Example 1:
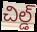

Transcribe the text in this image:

చిల్డ్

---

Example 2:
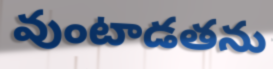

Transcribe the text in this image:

వుంటాడతను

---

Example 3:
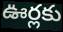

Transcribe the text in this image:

ఊర్లకు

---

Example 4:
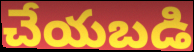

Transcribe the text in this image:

చేయబడి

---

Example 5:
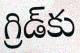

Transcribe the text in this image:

గ్రిడ్‌కు